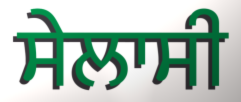
ਸੇਲਾਸੀ